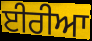
ਈਰੀਆ